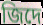
জিদে